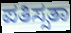
ಪತಿಸ್ಸತಾ